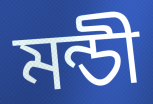
মন্ডী